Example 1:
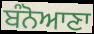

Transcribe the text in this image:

ਬੰਨੋਆਣਾ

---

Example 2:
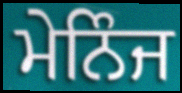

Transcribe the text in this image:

ਮੇਨਿੰਜ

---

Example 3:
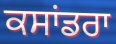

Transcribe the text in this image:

ਕਸਾਂਡਰਾ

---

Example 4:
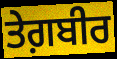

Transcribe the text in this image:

ਤੇਗ਼ਬੀਰ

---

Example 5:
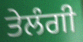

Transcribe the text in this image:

ਤੇਲੰਗੀ